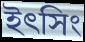
ইৎসিং